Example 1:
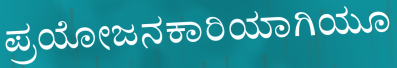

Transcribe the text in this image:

ಪ್ರಯೋಜನಕಾರಿಯಾಗಿಯೂ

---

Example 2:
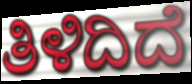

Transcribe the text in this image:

ತಿಳಿದಿದೆ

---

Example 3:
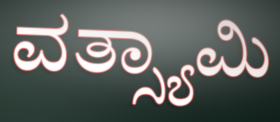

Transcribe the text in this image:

ವತ್ಸ್ಯಾಮಿ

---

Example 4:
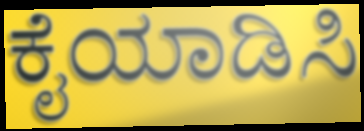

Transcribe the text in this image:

ಕೈಯಾಡಿಸಿ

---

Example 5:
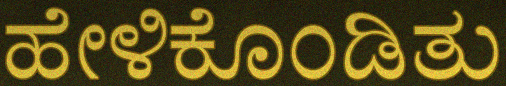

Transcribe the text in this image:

ಹೇಳಿಕೊಂಡಿತು